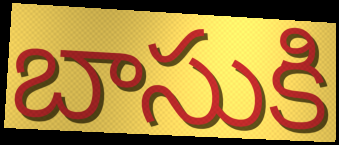
బాసుకి